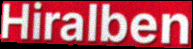
Hiralben